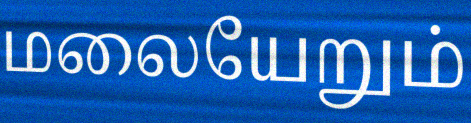
மலையேறும்